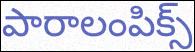
పారాలంపిక్స్